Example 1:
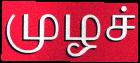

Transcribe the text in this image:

முழச்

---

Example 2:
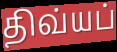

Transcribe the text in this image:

திவ்யப்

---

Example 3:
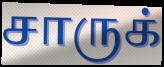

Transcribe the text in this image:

சாருக்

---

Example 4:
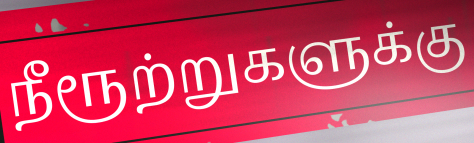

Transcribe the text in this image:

நீரூற்றுகளுக்கு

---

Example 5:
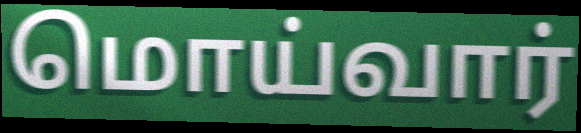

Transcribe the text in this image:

மொய்வார்